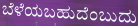
ಬೆಳೆಯಬಹುದೆಂಬುದು